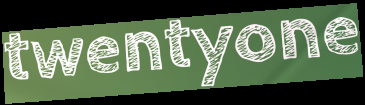
twentyone